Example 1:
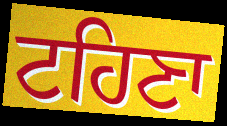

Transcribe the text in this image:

ਟਹਿਣਾ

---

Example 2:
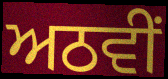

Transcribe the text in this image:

ਅਠਵੀਂ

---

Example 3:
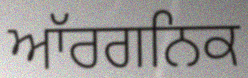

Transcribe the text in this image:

ਆੱਰਗਨਿਕ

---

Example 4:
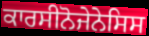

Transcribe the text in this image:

ਕਾਰਸੀਨੋਜੇਨੇਸਿਸ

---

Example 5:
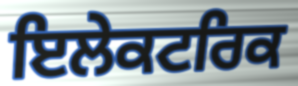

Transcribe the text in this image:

ਇਲੇਕਟਰਿਕ